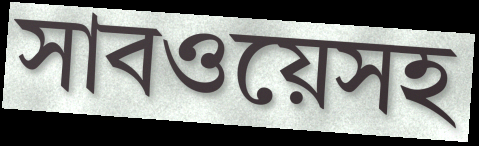
সাবওয়েসহ